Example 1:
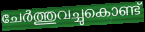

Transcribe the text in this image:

ചേർത്തുവച്ചുകൊണ്ട്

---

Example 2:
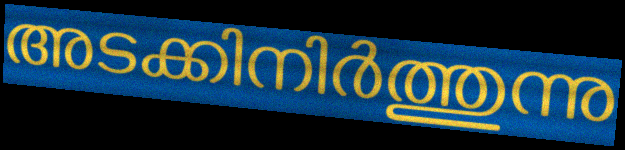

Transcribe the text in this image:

അടക്കിനിർത്തുന്നു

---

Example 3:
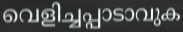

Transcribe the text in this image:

വെളിച്ചപ്പാടാവുക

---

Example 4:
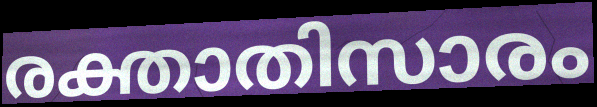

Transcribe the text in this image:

രക്താതിസാരം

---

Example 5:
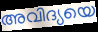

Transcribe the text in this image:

അവിദ്യയെ